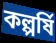
কল্পর্ষি